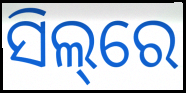
ସିଲ୍‌ରେ